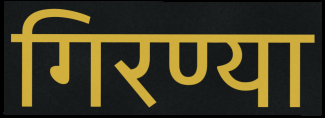
गिरण्या